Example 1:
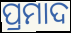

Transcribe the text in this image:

ପ୍ରମାଦ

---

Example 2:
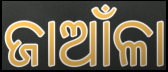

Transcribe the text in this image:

ଜାଆଁଳା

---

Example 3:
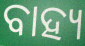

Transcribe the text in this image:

ବାହ୍ୟ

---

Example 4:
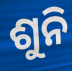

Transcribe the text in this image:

ଶୁନି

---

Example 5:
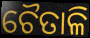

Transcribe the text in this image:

ଚୈତାଳି